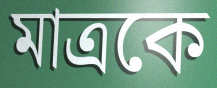
মাত্ৰকে